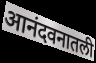
आनंदवनातली